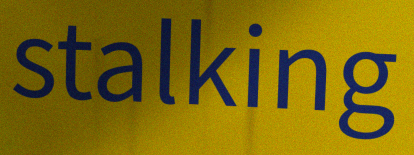
stalking